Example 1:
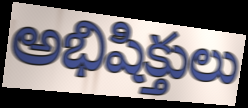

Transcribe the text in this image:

అభిషిక్తులు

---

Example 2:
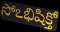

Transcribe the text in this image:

సోఽభిషిక్తో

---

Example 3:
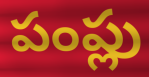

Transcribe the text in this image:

పంప్లు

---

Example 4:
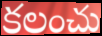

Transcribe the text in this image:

కలంచు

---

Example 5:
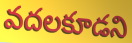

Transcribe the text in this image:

వదలకూడని